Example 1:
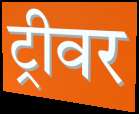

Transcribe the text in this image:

ट्रीवर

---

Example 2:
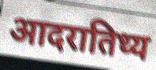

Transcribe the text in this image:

आदरातिथ्य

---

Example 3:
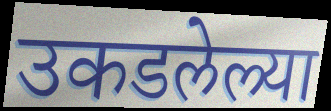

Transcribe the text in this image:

उकडलेल्या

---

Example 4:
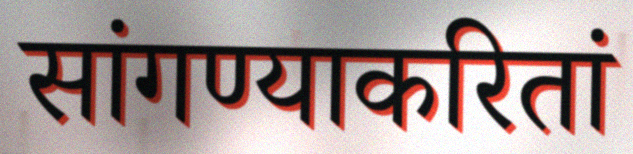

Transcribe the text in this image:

सांगण्याकरितां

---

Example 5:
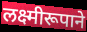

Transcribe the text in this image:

लक्ष्मीरूपाने